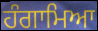
ਹੰਗਾਮਿਆ